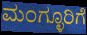
ಮಂಗ್ಳೂರಿಗೆ